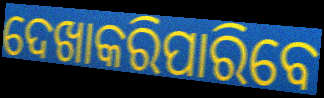
ଦେଖାକରିପାରିବେ